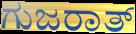
ಗುಜರಾತ್